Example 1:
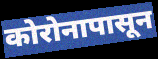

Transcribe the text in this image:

कोरोनापासून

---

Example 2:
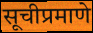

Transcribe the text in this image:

सूचीप्रमाणे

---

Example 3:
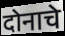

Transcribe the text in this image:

दोनाचे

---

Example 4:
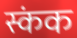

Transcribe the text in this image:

स्कंक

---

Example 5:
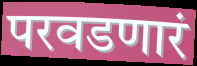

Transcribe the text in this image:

परवडणारं